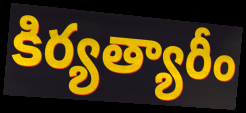
కిర్యత్యారీం